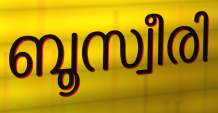
ബൂസ്വീരി